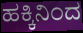
ಹಕ್ಕಿನಿಂದ